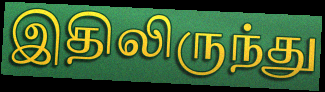
இதிலிருந்து